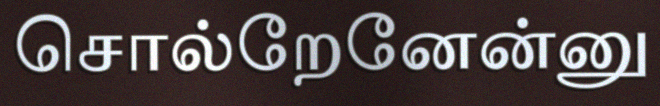
சொல்றேனேன்னு